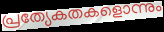
പ്രത്യേകതകളൊന്നും